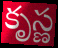
కృస్ణ